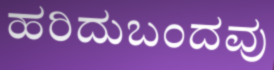
ಹರಿದುಬಂದವು